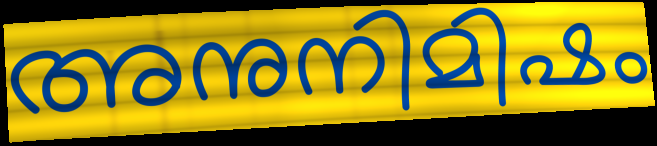
അനുനിമിഷം